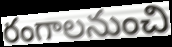
రంగాలనుంచి